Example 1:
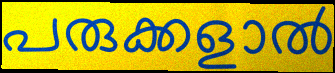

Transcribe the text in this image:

പരുക്കളാൽ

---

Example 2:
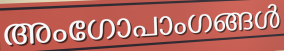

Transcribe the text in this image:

അംഗോപാംഗങ്ങൾ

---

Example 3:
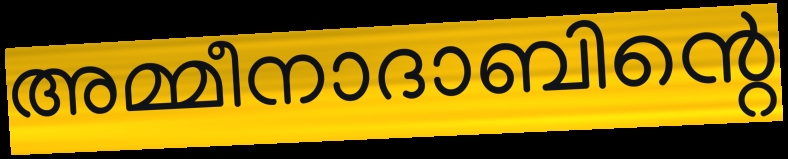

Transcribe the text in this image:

അമ്മീനാദാബിന്റെ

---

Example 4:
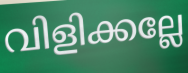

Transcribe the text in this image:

വിളിക്കല്ലേ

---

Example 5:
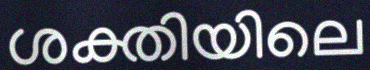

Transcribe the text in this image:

ശക്തിയിലെ